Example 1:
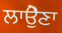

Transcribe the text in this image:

ਲਾਉੇਣਾ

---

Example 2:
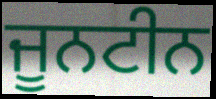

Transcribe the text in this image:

ਜੂਨਟੀਨ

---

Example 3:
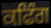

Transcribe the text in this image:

ਕਫਿੰਗ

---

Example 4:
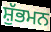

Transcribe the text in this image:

ਸ਼ੁੱਭਮਨ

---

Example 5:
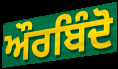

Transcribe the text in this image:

ਔਰਬਿੰਦੋ